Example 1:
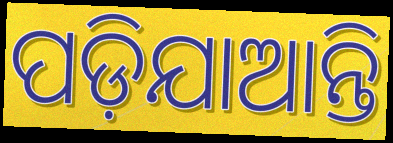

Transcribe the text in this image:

ପଡ଼ିଯାଆନ୍ତି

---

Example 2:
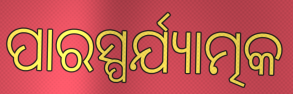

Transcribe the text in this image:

ପାରସ୍ପର୍ଯ୍ୟାତ୍ମକ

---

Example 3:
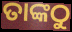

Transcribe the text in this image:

ତାଙ୍କଠୁ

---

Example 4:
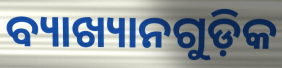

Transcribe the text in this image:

ବ୍ୟାଖ୍ୟାନଗୁଡ଼ିକ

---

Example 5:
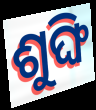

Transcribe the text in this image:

ଶୁଙ୍ଘି